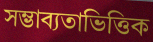
সম্ভাব্যতাভিত্তিক